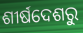
ଶୀର୍ଷଦେଶରୁ